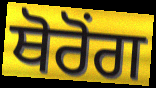
ਥੋਰੋਂਗ